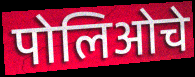
पोलिओचे